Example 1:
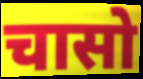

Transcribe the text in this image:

चासो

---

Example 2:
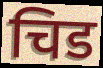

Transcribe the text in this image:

चिड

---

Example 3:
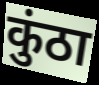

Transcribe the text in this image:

कुंठा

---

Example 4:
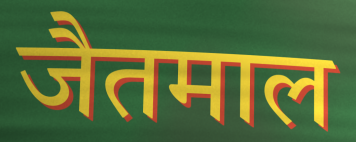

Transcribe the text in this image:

जैतमाल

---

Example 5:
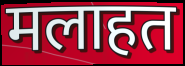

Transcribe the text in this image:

मलाहत